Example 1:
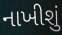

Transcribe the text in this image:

નાખીશું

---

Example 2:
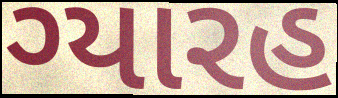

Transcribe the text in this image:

ગ્યારહ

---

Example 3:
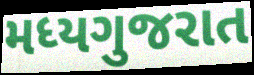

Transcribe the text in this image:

મધ્યગુજરાત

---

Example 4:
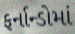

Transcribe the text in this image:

ફર્નાન્ડોમાં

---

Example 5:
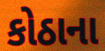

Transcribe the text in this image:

કોઠાના